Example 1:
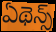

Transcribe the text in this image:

ఏథెన్స్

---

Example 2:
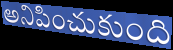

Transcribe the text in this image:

అనిపించుకుంది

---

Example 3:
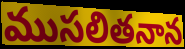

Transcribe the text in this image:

ముసలితనాన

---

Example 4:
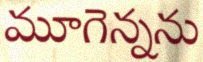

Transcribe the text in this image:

మూగెన్నను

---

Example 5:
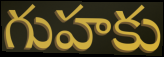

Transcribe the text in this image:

గుహకు